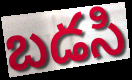
బడసి